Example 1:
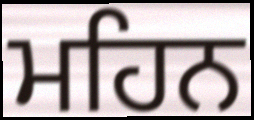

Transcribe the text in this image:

ਮਹਿਨ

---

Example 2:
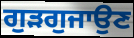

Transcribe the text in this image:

ਗੁੜਗੁਜਾਉਣ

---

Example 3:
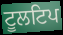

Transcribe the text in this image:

ਟੂਲਟਿਪ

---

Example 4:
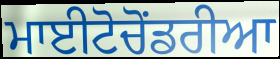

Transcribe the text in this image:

ਮਾਈਟੋਚੋਂਡਰੀਆ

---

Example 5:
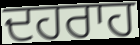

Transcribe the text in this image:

ਦਹਰਾਹ